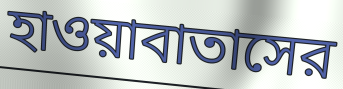
হাওয়াবাতাসের